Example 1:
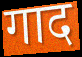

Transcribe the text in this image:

गाद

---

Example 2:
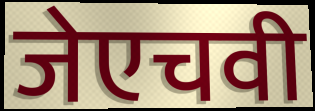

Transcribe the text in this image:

जेएचवी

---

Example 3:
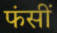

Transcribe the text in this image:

फंसीं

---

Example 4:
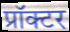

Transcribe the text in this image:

प्रॉक्टर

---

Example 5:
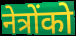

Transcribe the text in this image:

नेत्रोंको